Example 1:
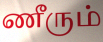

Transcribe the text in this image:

ணீரும்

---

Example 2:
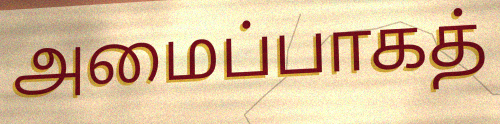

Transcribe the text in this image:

அமைப்பாகத்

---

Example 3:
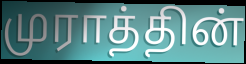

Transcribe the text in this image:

முராத்தின்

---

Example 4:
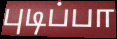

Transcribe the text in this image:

புடிப்பா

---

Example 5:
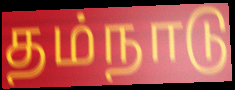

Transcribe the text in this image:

தம்நாடு